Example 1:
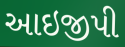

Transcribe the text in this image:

આઇજીપી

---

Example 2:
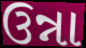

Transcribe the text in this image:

ઉન્ના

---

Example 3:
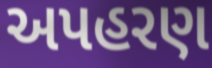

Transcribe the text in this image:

અપહરણ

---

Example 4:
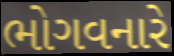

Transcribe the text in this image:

ભોગવનારે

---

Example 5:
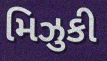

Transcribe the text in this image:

મિઝુકી